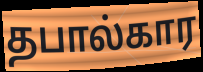
தபால்கார